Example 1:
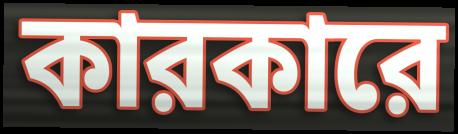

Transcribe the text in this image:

কারকারে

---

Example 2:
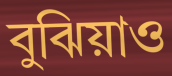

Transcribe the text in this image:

বুঝিয়াও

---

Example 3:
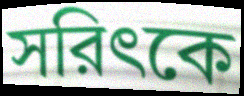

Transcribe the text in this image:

সরিৎকে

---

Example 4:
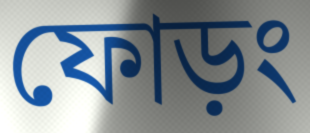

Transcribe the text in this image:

ফোড়ং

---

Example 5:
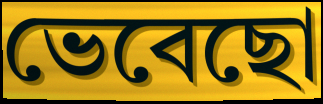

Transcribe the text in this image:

ভেবেছো